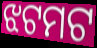
ଝଟମଟ